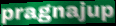
pragnajup